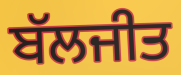
ਬੱਲਜੀਤ